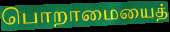
பொறாமையைத்